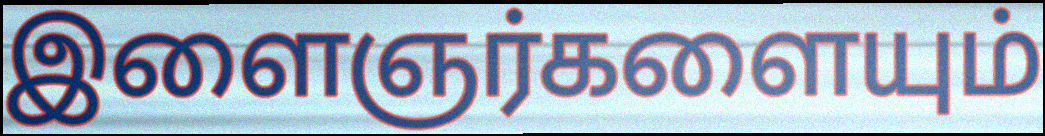
இளைஞர்களையும்